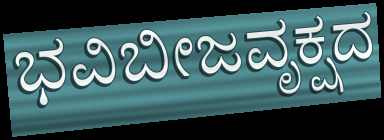
ಭವಿಬೀಜವೃಕ್ಷದ